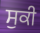
ਸੁਕੀ